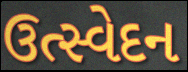
ઉત્સ્વેદન